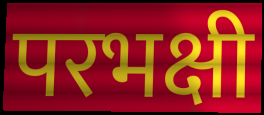
परभक्षी